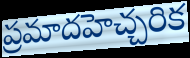
ప్రమాదహెచ్చరిక